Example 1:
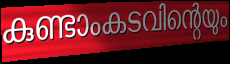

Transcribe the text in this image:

കുണ്ടാംകടവിന്റെയും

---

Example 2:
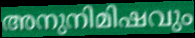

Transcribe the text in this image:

അനുനിമിഷവും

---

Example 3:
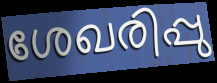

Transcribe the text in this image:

ശേഖരിപ്പു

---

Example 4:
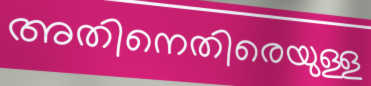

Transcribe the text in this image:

അതിനെതിരെയുള്ള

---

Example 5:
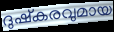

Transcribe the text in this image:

ദുഷ്കരവുമായ